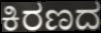
ಕಿರಣದ